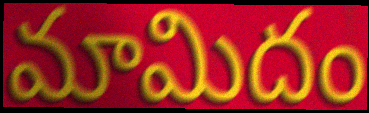
మామిదం